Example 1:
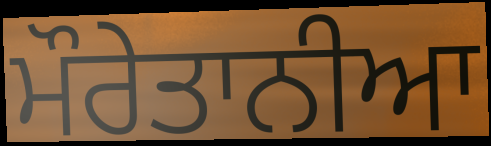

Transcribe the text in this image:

ਮੌਰੇਤਾਨੀਆ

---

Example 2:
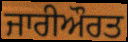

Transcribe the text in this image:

ਜਾਰੀਔਰਤ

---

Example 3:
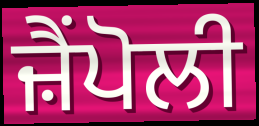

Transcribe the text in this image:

ਜ਼ੈਂਪੋਲੀ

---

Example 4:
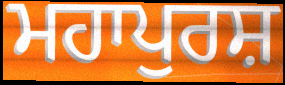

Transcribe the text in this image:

ਮਹਾਪੁਰਸ਼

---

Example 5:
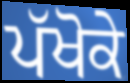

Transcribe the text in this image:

ਪੱਖੋਕੇ